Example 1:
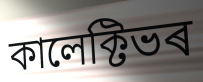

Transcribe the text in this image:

কালেক্টিভৰ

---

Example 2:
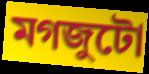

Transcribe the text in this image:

মগজুটো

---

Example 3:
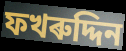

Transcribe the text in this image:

ফখৰুদ্দিন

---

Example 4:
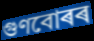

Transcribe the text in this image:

গুণবোৰৰ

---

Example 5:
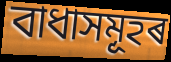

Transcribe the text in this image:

বাধাসমূহৰ